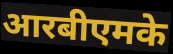
आरबीएमके